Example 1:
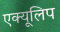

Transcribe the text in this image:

एक्यूलिप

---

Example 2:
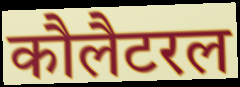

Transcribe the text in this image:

कौलैटरल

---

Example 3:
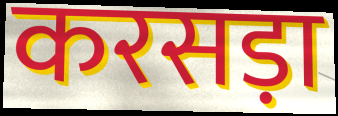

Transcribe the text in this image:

करसड़ा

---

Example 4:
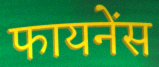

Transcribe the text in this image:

फायनेंस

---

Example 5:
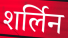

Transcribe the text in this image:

शर्लिन